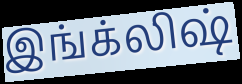
இங்க்லிஷ்